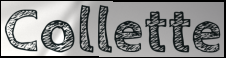
Collette